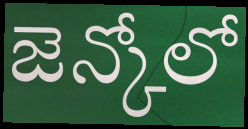
జెన్కోలో